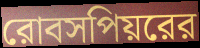
রোবসপিয়রের